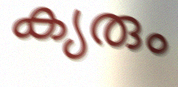
ക്യരും